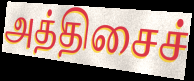
அத்திசைச்